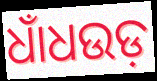
ଧାଁଧଉଡ଼